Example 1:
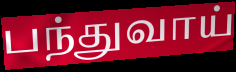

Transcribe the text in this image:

பந்துவாய்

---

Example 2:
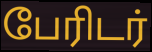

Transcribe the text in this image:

பேரிடர்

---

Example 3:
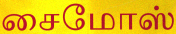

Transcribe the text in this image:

சைமோஸ்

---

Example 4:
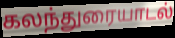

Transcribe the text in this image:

கலந்துரையாடல்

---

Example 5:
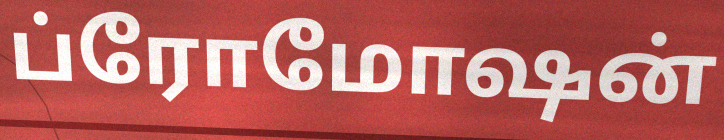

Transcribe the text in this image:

ப்ரோமோஷன்